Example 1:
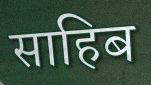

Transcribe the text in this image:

साहिब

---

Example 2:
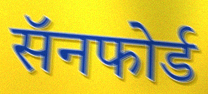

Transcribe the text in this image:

सॅनफोर्ड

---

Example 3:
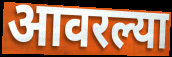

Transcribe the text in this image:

आवरल्या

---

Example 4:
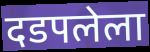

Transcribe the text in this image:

दडपलेला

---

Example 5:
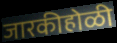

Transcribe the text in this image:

जारकीहोळी